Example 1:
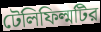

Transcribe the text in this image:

টেলিফিল্মটির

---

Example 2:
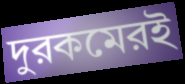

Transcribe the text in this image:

দুরকমেরই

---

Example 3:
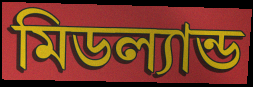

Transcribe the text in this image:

মিডল্যান্ড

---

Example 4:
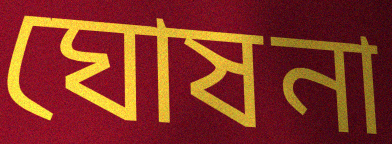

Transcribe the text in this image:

ঘোষনা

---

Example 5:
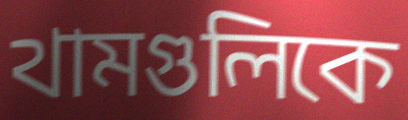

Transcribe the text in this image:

থামগুলিকে